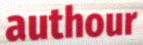
authour